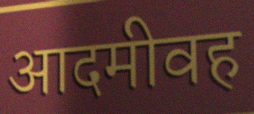
आदमीवह